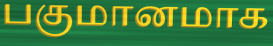
பகுமானமாக